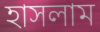
হাসলাম